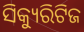
ସିକ୍ୟୁରିଟିଜ